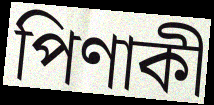
পিণাকী